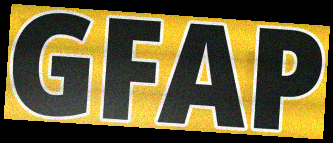
GFAP